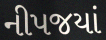
નીપજયાં